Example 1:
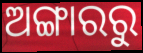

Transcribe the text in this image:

ଅଙ୍ଗାରରୁ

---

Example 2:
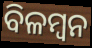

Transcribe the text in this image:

ବିଳମ୍ବନ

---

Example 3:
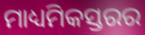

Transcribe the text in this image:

ମାଧ୍ୟମିକସ୍ତରର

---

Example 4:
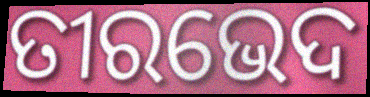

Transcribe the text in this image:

ତୀରଭେଦ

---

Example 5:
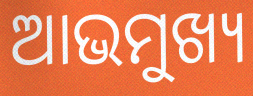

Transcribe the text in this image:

ଆଭମୁଖ୍ୟ